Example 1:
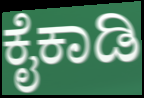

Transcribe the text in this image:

ಕೈಕಾಡಿ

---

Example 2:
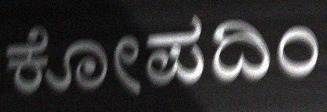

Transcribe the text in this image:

ಕೋಪದಿಂ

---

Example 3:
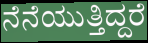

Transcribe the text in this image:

ನೆನೆಯುತ್ತಿದ್ದರೆ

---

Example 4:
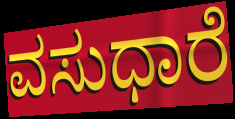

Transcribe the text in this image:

ವಸುಧಾರೆ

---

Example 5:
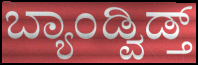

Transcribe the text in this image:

ಬ್ಯಾಂಡ್ವಿಡ್ತ್